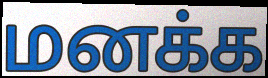
மனக்க